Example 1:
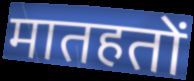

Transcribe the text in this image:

मातहतों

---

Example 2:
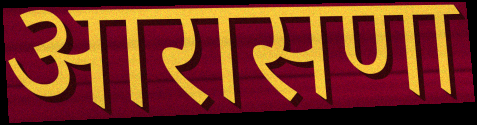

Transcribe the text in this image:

आरासणा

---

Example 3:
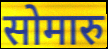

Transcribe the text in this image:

सोमारु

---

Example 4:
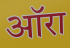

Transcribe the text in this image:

ऑरा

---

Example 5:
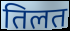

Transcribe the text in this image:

तिलत